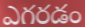
ఎగరడం